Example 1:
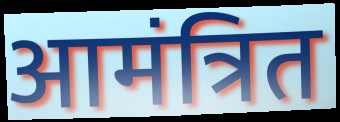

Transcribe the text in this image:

आमंत्रित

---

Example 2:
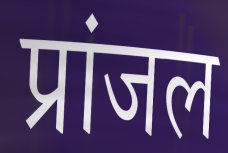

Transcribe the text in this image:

प्रांजल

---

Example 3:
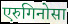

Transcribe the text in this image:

एरुगिनोसा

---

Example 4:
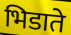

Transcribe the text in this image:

भिडाते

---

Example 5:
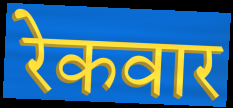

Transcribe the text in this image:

रेकवार